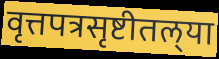
वृत्तपत्रसृष्टीतल्या